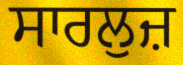
ਸਾਰਲੁਜ਼